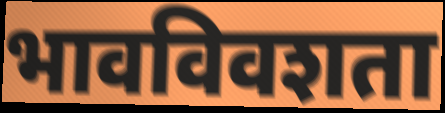
भावविवशता